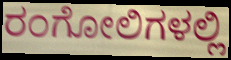
ರಂಗೋಲಿಗಳಲ್ಲಿ